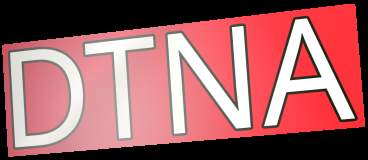
DTNA